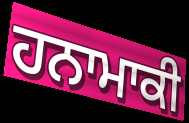
ਹਨਾਮਾਕੀ